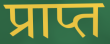
प्राप्त